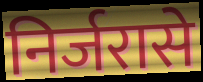
निर्जरासे